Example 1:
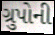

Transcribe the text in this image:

ગ્રુપોની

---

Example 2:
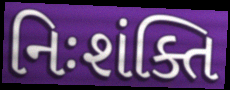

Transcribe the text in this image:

નિઃશંક્તિ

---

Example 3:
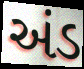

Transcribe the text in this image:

અંડ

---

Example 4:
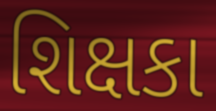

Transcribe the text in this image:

શિક્ષકા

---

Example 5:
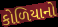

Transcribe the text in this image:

કોળિયાનો